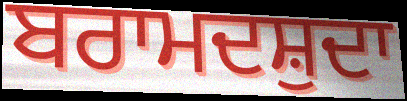
ਬਰਾਮਦਸ਼ੁਦਾ